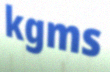
kgms